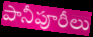
పానీపూరీలు